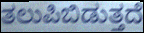
ತಲುಪಿಬಿಡುತ್ತದೆ